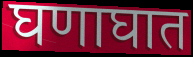
घणाघात